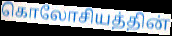
கொலோசியத்தின்